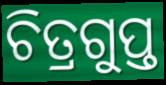
ଚିତ୍ରଗୁପ୍ତ